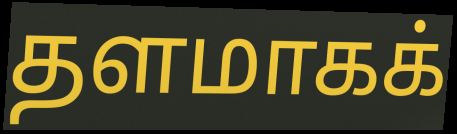
தளமாகக்